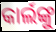
କାର୍ଲଙ୍କୁ